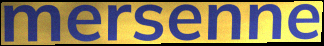
mersenne